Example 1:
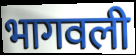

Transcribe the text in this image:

भागवली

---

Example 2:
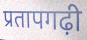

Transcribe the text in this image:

प्रतापगढ़ी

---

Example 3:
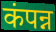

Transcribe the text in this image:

कंपन्न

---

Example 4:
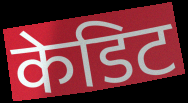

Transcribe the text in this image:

केडिट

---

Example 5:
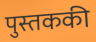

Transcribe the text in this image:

पुस्तककी